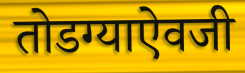
तोडग्याऐवजी